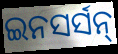
ଇନସର୍ସନ୍